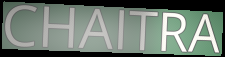
CHAITRA